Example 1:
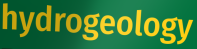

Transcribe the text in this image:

hydrogeology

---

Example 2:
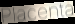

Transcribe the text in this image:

Placenta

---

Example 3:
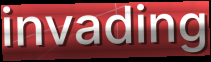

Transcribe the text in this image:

invading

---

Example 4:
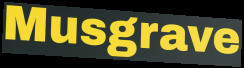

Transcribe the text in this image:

Musgrave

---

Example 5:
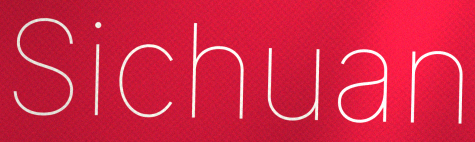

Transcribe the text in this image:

Sichuan